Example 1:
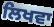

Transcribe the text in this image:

ਲਿਖਵਾ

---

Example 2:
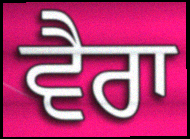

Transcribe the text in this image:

ਵੈਰਾ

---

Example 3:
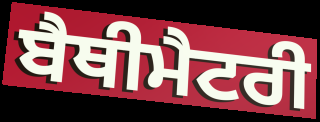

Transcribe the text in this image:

ਬੈਥੀਮੈਟਰੀ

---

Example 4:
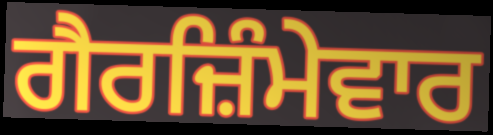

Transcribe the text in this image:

ਗੈਰਜ਼ਿੰਮੇਵਾਰ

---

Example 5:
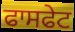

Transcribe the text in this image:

ਫਾਸਫੇਟ